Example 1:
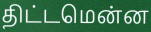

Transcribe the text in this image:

திட்டமென்ன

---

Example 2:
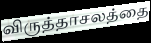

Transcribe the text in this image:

விருத்தாசலத்தை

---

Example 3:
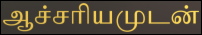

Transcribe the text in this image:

ஆச்சரியமுடன்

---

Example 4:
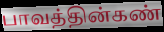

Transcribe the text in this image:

பாவத்தின்கண்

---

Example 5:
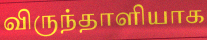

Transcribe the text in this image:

விருந்தாளியாக